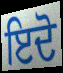
ਇਦੋ